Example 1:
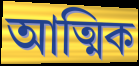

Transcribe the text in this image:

আত্মিক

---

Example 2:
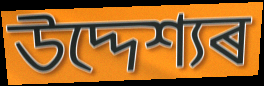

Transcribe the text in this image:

উদ্দেশ্যৰ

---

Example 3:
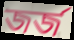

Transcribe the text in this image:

জৰ্জ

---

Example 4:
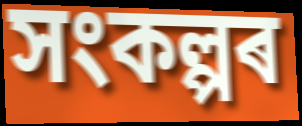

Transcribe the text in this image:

সংকল্পৰ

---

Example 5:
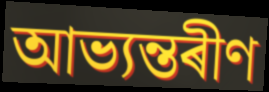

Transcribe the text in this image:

আভ্যন্তৰীণ